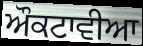
ਔਕਟਾਵੀਆ